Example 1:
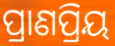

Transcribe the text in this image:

ପ୍ରାଣପ୍ରିୟ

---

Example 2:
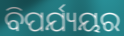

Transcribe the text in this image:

ବିପର୍ଯ୍ୟୟର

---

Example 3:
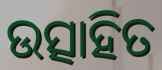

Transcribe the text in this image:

ଉତ୍ସାହିତ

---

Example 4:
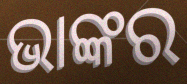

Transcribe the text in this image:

ଭାଙ୍କର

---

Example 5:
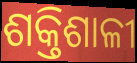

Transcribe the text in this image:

ଶକ୍ତିଶାଳୀ